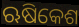
ଋଷିକେଶ